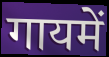
गायमें